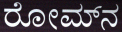
ರೋಮ್‍ನ